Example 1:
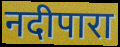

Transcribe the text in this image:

नदीपारा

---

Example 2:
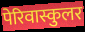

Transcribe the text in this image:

पेरिवास्कुलर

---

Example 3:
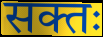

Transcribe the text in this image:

सक्तः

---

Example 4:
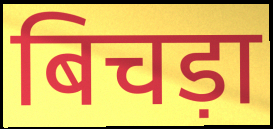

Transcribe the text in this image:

बिचड़ा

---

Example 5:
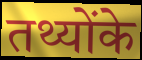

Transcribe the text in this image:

तथ्योंके